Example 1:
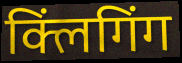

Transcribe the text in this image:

क्लिंगिंग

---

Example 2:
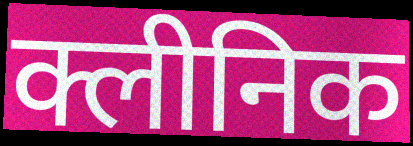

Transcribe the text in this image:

क्लीनिक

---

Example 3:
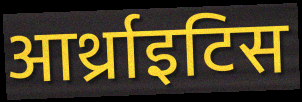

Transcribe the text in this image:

आर्थ्राइटिस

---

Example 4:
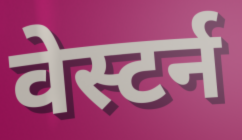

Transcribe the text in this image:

वेस्टर्न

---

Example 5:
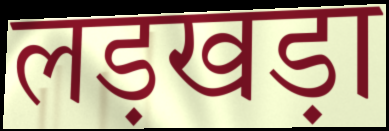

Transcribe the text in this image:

लड़खड़ा